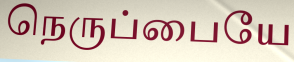
நெருப்பையே